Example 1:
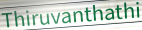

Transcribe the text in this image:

Thiruvanthathi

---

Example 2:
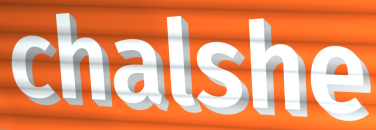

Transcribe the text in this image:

chalshe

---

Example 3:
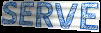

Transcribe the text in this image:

SERVE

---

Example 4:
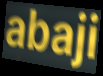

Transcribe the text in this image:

abaji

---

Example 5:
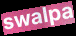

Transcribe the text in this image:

swalpa